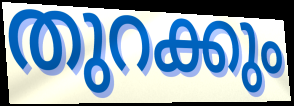
തുറക്കും